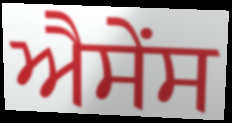
ਐਸੇਂਸ